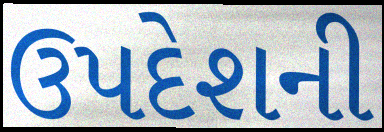
ઉપદેશની